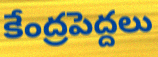
కేంద్రపెద్దలు